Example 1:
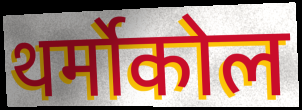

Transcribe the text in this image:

थर्मोकोल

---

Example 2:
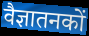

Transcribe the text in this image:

वैज्ञातनकों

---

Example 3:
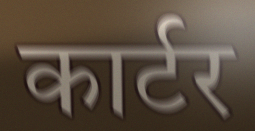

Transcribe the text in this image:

कार्टर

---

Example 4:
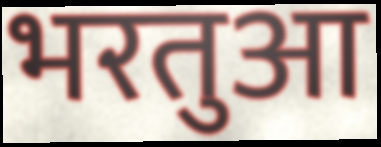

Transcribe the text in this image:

भरतुआ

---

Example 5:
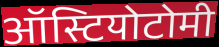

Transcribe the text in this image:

ऑस्टियोटोमी